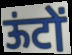
ऊंटों